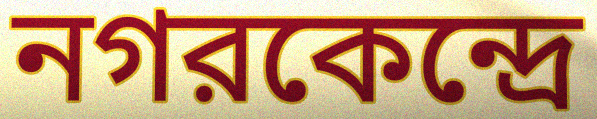
নগরকেন্দ্রে